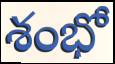
శంభో